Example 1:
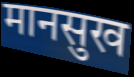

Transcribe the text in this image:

मानसुख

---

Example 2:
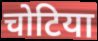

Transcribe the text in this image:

चोटिया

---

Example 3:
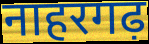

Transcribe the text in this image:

नाहरगढ़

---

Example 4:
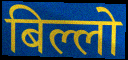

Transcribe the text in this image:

बिल्लो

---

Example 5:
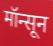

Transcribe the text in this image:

मॉन्सून